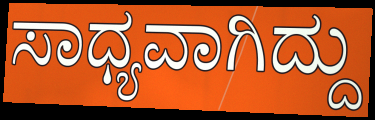
ಸಾಧ್ಯವಾಗಿದ್ದು